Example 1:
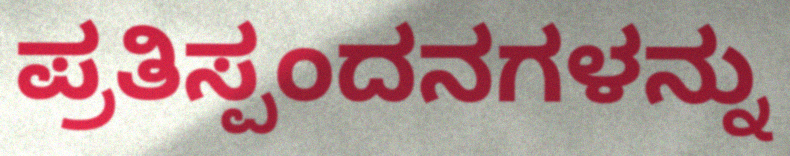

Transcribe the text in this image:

ಪ್ರತಿಸ್ಪಂದನಗಳನ್ನು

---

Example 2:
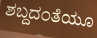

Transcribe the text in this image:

ಶಬ್ದದಂತೆಯೂ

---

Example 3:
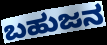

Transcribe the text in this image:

ಬಹುಜನ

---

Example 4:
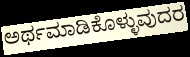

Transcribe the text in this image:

ಅರ್ಥಮಾಡಿಕೊಳ್ಳುವುದರ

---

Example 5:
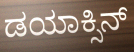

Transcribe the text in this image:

ಡಯಾಕ್ಸಿನ್